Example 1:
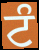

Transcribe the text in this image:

ਟੰ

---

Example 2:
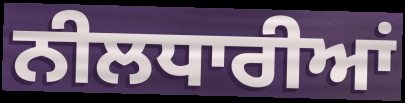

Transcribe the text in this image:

ਨੀਲਧਾਰੀਆਂ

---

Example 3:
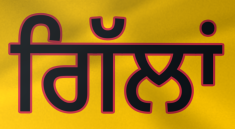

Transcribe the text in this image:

ਗਿੱਲਾਂ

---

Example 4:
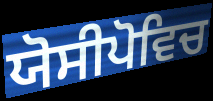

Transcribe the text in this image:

ਯੋਸੀਪੋਵਿਚ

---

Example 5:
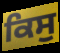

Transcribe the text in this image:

ਕਿਸੁ